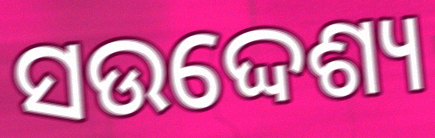
ସଉଦ୍ଦେଶ୍ୟ